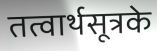
तत्वार्थसूत्रके